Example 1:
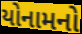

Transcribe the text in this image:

યોનામનો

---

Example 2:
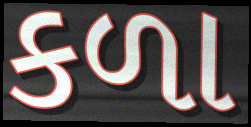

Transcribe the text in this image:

કળા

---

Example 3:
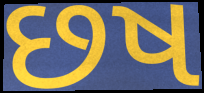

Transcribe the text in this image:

છષ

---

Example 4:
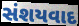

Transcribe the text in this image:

સંશયવાદ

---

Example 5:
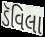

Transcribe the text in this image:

ડૅવિલા